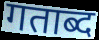
गताब्द